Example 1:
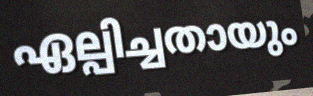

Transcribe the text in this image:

ഏല്പിച്ചതായും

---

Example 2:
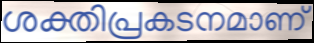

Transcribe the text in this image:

ശക്തിപ്രകടനമാണ്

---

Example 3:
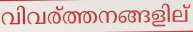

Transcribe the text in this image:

വിവര്ത്തനങ്ങളില്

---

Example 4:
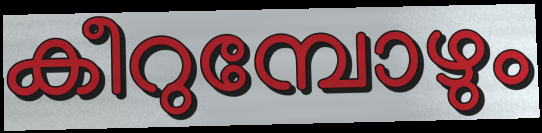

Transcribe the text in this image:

കീറുമ്പോഴും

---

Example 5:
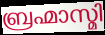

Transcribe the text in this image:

ബ്രഹ്മാസ്മി